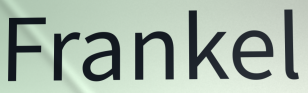
Frankel